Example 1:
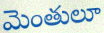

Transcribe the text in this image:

మెంతులూ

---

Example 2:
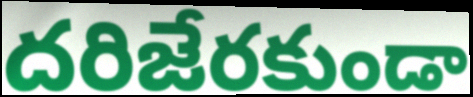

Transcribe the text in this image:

దరిజేరకుండా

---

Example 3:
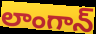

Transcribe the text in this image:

లాంగాన్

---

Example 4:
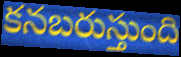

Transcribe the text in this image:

కనబరుస్తుంది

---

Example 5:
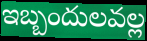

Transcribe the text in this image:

ఇబ్బందులవల్ల